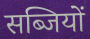
सब्जियों